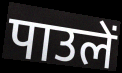
पाउलें